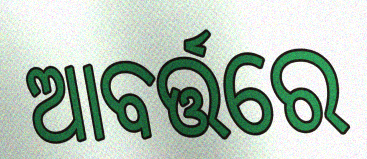
ଆବର୍ତ୍ତରେ